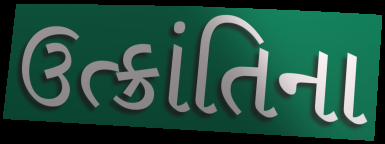
ઉત્ક્રાંતિના